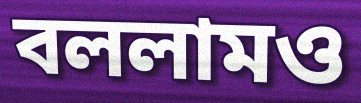
বললামও